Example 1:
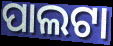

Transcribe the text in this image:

ପାଲଟା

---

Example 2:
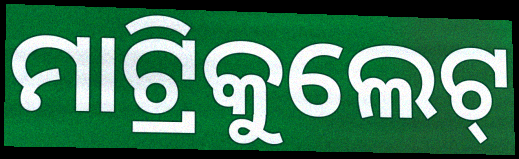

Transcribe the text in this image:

ମାଟ୍ରିକୁଲେଟ୍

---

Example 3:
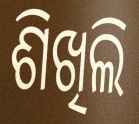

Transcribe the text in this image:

ଶିଖିଲି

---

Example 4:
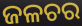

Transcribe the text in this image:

ଜଳଚର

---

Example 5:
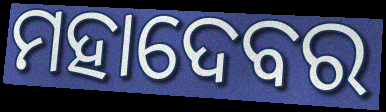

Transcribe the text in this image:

ମହାଦେବର